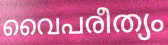
വൈപരീത്യം